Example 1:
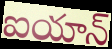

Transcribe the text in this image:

ఐయాన్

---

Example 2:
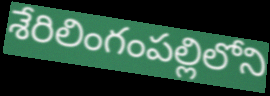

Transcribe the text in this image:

శేరిలింగంపల్లిలోని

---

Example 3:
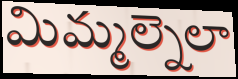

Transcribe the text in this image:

మిమ్మల్నెలా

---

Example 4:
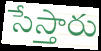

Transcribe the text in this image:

సేస్తారు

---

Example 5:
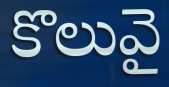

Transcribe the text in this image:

కొలువై